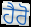
ਹੈਰੋ